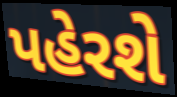
પહેરશે